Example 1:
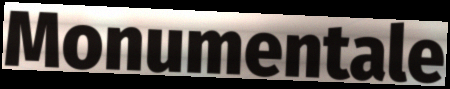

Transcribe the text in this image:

Monumentale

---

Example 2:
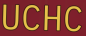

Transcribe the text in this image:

UCHC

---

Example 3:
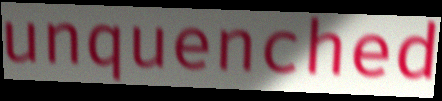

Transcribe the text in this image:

unquenched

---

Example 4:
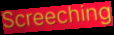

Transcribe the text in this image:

Screeching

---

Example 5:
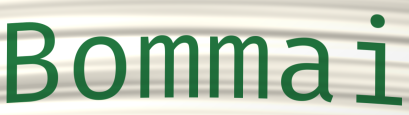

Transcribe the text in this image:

Bommai